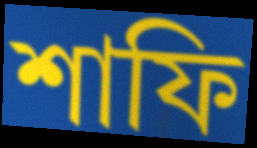
শাফি